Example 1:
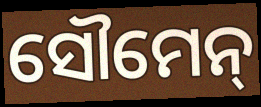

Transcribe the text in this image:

ସୌମେନ୍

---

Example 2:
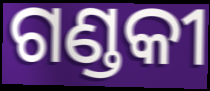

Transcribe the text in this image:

ଗଣ୍ଡକୀ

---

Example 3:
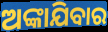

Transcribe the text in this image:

ଅଙ୍କାଯିବାର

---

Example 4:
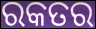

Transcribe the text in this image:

ରକତର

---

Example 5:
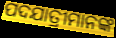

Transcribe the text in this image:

ପଦଯାତ୍ରୀମାନଙ୍କ